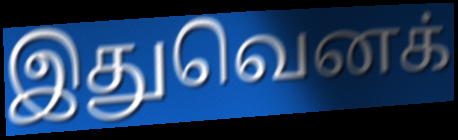
இதுவெனக்